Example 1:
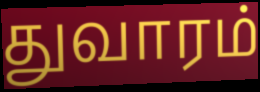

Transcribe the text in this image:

துவாரம்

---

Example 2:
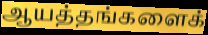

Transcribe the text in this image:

ஆயத்தங்களைக்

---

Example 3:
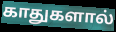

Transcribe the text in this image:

காதுகளால்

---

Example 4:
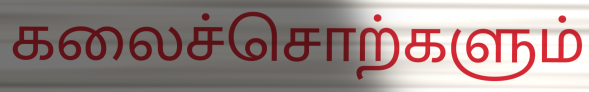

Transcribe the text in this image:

கலைச்சொற்களும்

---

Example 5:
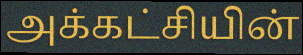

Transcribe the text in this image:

அக்கட்சியின்